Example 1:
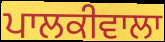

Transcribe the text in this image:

ਪਾਲਕੀਵਾਲਾ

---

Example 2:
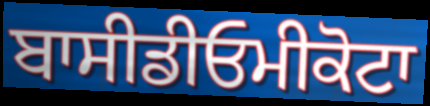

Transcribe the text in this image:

ਬਾਸੀਡੀਓਮੀਕੋਟਾ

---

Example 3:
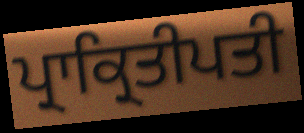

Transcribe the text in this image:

ਪ੍ਰਾਕ੍ਰਿਤੀਪਤੀ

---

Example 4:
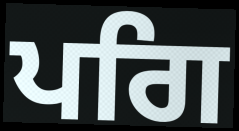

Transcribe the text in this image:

ਪਗਿ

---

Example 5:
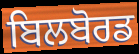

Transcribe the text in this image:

ਬਿਲਬੋਰਡ